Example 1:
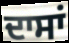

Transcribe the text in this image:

ਦਾਸਾਂ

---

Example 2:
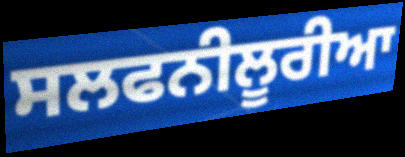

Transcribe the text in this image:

ਸਲਫਨੀਲੂਰੀਆ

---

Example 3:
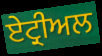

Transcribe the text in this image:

ਏਟ੍ਰੀਅਲ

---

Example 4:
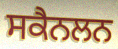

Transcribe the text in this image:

ਸਕੈਨਲਨ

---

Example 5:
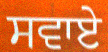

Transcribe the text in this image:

ਸਵਾਏ